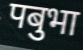
पबुभा